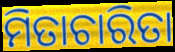
ମିତାଚାରିତା